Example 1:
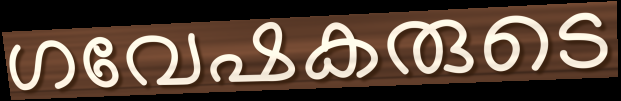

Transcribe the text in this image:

ഗവേഷകരുടെ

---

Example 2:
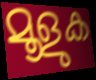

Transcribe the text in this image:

മൂളുക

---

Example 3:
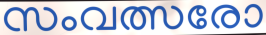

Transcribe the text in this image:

സംവത്സരോ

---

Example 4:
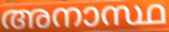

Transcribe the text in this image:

അനാസ്ഥ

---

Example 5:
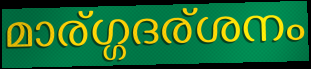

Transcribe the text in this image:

മാര്ഗ്ഗദര്ശനം